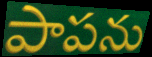
పాపను